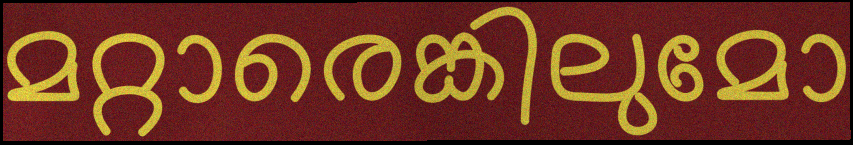
മറ്റാരെങ്കിലുമോ